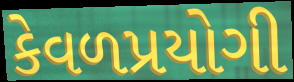
કેવળપ્રયોગી